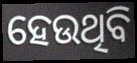
ହେଉଥିବି